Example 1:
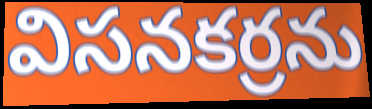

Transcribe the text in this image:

విసనకర్రను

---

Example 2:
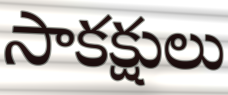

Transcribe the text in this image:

సాకక్షులు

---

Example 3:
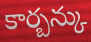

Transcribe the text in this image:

కార్బన్కు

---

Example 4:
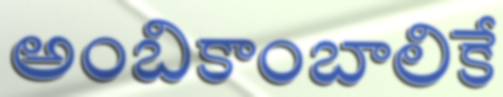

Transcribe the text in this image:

అంబికాంబాలికే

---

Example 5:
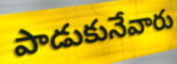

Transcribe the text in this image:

పాడుకునేవారు